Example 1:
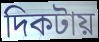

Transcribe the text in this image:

দিকটায়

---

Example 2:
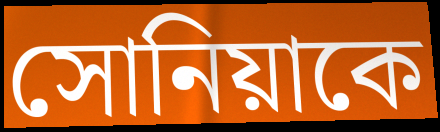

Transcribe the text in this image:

সোনিয়াকে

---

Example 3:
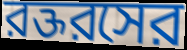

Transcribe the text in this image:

রক্তরসের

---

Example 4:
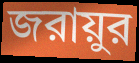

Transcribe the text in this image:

জরায়ুর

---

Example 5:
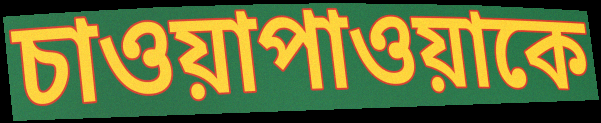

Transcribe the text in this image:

চাওয়াপাওয়াকে